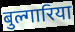
बुल्गारिया